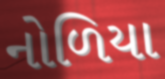
નોળિયા